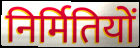
निर्मितियों